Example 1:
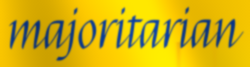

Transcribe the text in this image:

majoritarian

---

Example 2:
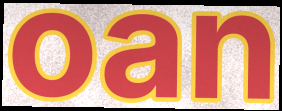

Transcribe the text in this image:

oan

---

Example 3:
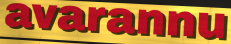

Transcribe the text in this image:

avarannu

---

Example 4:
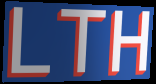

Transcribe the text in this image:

LTH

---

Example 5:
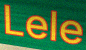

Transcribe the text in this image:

Lele